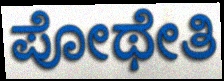
ಪೋಥೇತಿ